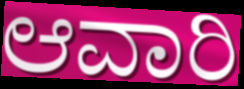
ಆವಾರಿ